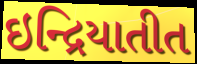
ઇન્દ્રિયાતીત